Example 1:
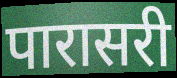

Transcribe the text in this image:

पारासरी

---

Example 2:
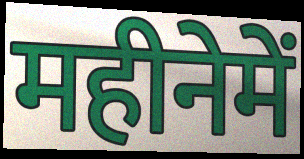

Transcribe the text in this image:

महीनेमें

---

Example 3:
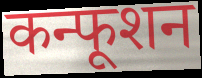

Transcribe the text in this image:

कन्फूशन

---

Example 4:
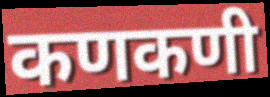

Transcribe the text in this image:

कणकणी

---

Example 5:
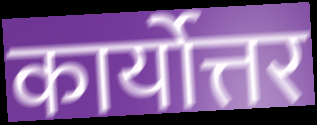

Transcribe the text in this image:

कार्योत्तर